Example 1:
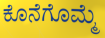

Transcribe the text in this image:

ಕೊನೆಗೊಮ್ಮೆ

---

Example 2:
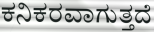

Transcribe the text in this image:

ಕನಿಕರವಾಗುತ್ತದೆ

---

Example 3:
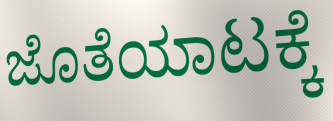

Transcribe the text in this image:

ಜೊತೆಯಾಟಕ್ಕೆ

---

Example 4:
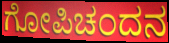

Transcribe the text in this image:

ಗೋಪಿಚಂದನ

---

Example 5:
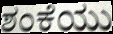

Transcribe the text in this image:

ಶಂಕೆಯು